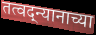
तत्वद्न्यानाच्या